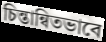
চিন্তান্বিতভাবে